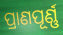
ପ୍ରାଣପୂର୍ଣ୍ଣ